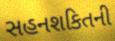
સહનશકિતની